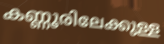
കണ്ണൂരിലേക്കുള്ള